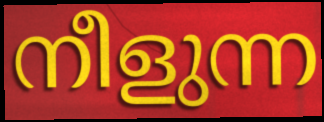
നീളുന്ന